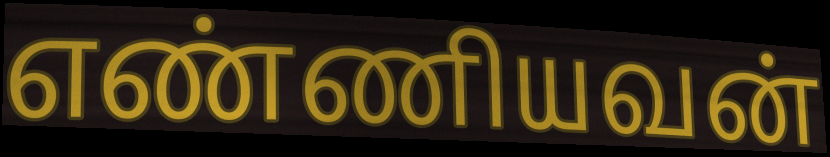
எண்ணியவன்